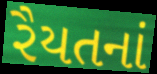
રૈયતનાં